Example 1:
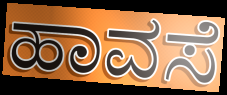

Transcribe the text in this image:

ಹಾವಸೆ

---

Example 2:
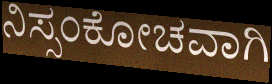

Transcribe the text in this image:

ನಿಸ್ಸಂಕೋಚವಾಗಿ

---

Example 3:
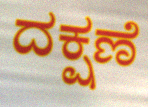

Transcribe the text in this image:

ದಕ್ಷಣೆ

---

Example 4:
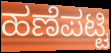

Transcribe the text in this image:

ಹಣೆಪಟ್ಟಿ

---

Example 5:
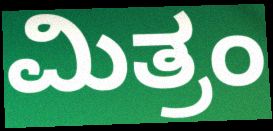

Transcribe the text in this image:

ಮಿತ್ರಂ